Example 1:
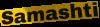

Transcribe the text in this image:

Samashti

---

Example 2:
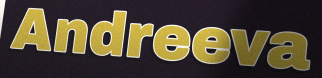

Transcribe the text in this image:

Andreeva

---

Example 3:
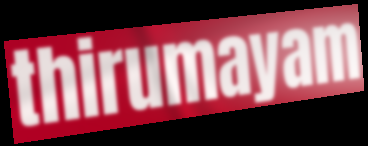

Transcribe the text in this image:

thirumayam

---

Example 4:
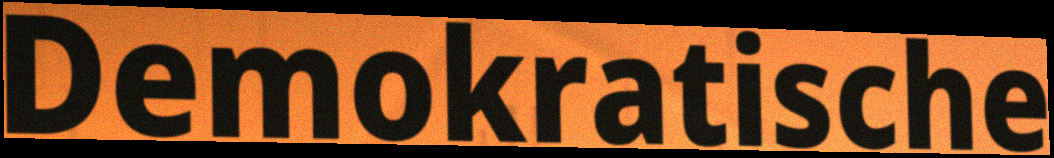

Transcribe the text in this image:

Demokratische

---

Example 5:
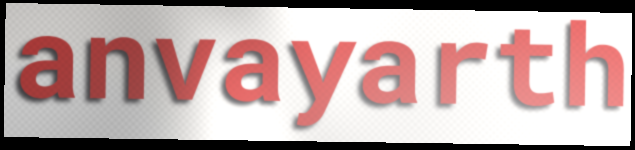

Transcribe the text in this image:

anvayarth